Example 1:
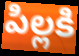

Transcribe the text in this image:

పిల్లకి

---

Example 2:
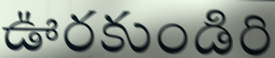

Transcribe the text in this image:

ఊరకుండిరి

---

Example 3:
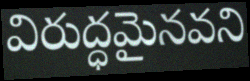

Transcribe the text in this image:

విరుద్ధమైనవని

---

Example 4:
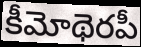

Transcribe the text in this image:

కీమోథెరపీ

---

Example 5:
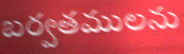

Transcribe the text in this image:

బర్వతములను